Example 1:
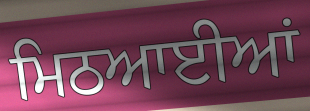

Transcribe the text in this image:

ਮਿਠਆਈਆਂ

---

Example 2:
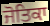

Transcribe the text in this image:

ਜੋਤਿਕਾ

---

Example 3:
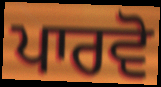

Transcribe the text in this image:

ਪਾਰਵੋ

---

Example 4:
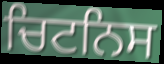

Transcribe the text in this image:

ਚਿਟਨਿਸ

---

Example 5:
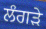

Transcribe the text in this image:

ਲੰਗੜੇ